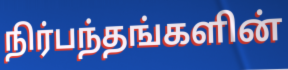
நிர்பந்தங்களின்